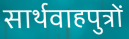
सार्थवाहपुत्रों